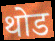
थोड